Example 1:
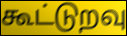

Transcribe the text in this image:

கூட்டுறவு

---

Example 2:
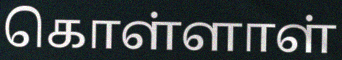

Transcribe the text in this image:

கொள்ளாள்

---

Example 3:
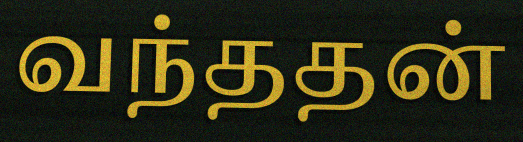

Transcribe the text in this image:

வந்ததன்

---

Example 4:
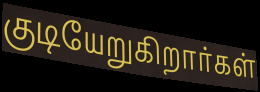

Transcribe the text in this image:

குடியேறுகிறார்கள்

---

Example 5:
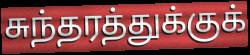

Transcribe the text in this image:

சுந்தரத்துக்குக்